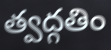
త్వద్గతిం